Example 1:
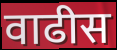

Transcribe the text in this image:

वाढीस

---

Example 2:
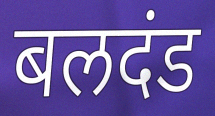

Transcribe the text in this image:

बलदंड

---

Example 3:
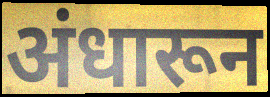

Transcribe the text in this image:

अंधारून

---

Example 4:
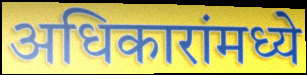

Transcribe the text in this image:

अधिकारांमध्ये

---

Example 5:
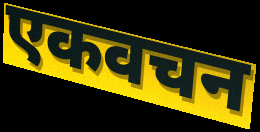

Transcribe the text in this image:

एकवचन